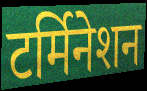
टर्मिनेशन